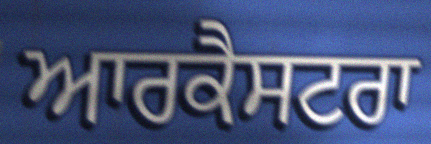
ਆਰਕੈਸਟਰਾ